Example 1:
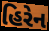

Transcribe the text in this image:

હિરેન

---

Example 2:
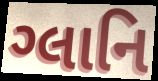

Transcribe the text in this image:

ગ્લાનિ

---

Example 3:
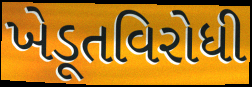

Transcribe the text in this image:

ખેડૂતવિરોધી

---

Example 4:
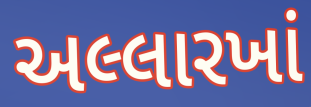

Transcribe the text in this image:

અલ્લારખાં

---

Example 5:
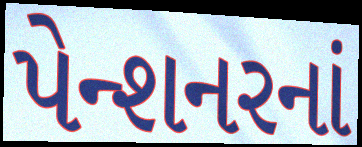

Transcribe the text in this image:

પેન્શનરનાં